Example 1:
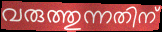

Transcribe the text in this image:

വരുത്തുന്നതിന്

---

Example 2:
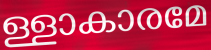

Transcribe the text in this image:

ള്ളാകാരമേ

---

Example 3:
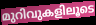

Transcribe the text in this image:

മുറിവുകളിലൂടെ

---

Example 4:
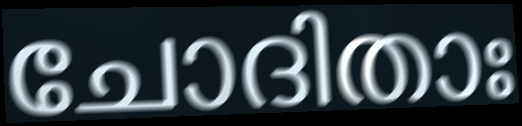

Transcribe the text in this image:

ചോദിതാഃ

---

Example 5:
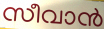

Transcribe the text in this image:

സീവാൻ